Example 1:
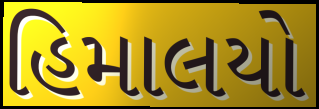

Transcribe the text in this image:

હિમાલયો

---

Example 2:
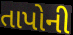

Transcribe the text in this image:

તાપોની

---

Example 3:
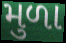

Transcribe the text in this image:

મુળા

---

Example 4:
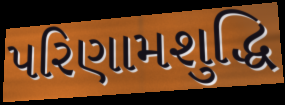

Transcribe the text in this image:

પરિણામશુદ્ધિ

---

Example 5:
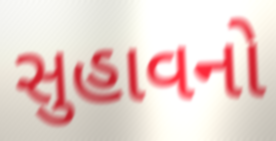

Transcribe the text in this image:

સુહાવનો